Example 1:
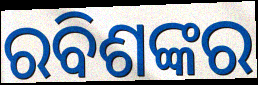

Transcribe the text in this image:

ରବିଶଙ୍କର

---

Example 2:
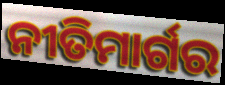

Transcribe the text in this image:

ନୀତିମାର୍ଗର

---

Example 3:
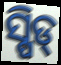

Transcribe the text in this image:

ସ୍ପିଡ୍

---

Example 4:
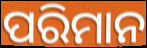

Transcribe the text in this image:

ପରିମାନ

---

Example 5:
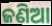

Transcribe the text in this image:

ଜଣିଆ